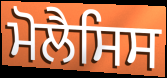
ਮੋਲੈਸਿਸ